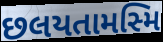
છલયતામસ્મિ